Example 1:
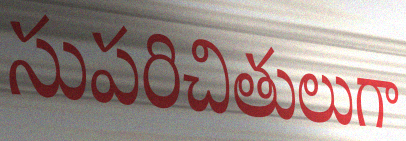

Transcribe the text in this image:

సుపరిచితులుగా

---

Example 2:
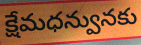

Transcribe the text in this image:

క్షేమధన్వునకు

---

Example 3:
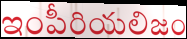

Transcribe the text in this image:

ఇంపీరియలిజం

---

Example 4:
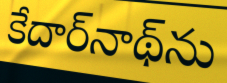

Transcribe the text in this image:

కేదార్‌నాథ్‌ను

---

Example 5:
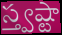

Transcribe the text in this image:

స్త్వష్టా